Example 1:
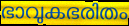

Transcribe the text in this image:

ഭാവുകഭരിതം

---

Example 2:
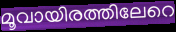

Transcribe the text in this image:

മൂവായിരത്തിലേറെ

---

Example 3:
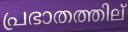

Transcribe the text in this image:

പ്രഭാതത്തില്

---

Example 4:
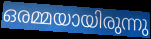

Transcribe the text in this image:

ഒരമ്മയായിരുന്നു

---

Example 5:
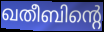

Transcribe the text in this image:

ഖതീബിന്റെ